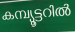
കമ്പ്യൂട്ടറിൽ